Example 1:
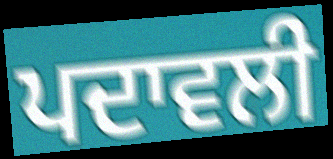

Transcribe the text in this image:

ਪਦਾਵਲੀ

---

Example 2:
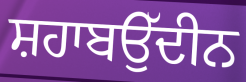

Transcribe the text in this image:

ਸ਼ਹਾਬਉੱਦੀਨ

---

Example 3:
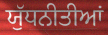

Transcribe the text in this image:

ਯੁੱਧਨੀਤੀਆਂ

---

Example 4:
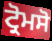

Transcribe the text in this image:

ਟ੍ਰੋਮਸੋ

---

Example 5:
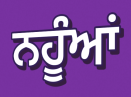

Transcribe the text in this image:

ਨਹੂੰਆਂ